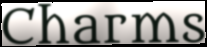
Charms